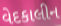
વેદકાલીન